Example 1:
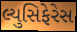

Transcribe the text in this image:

લ્યુસિફેરેસ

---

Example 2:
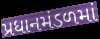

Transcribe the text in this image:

પ્રધાનમંડળમાં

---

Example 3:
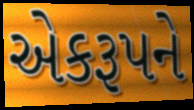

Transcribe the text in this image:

એકરૂપને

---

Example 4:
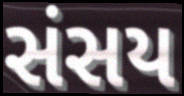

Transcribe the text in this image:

સંસય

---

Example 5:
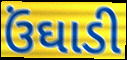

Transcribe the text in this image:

ઉંઘાડી